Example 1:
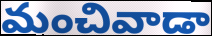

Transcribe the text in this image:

మంచివాడా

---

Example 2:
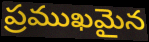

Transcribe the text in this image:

ప్రముఖమైన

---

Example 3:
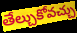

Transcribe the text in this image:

తేల్చుకోవచ్చు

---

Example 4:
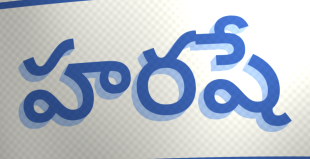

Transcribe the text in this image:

హరషే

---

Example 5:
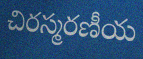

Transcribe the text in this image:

చిరస్మరణీయ